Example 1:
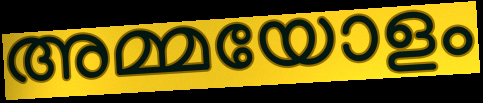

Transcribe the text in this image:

അമ്മയോളം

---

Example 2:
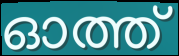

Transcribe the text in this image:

ഓത്ത്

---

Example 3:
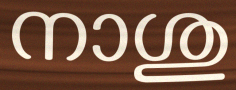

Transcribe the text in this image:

നാശു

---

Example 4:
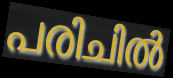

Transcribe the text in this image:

പരിചിൽ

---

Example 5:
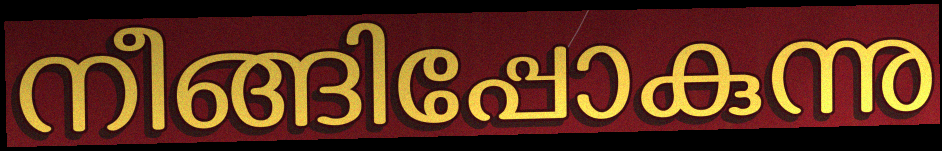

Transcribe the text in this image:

നീങ്ങിപ്പോകുന്നു